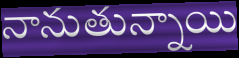
నానుతున్నాయి